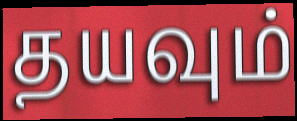
தயவும்